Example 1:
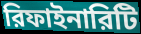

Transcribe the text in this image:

রিফাইনারিটি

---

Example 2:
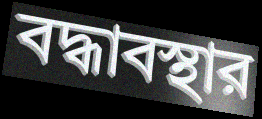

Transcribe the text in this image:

বদ্ধাবস্থার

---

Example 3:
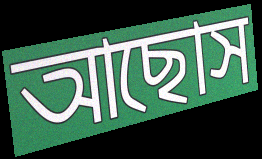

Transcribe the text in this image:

আছোস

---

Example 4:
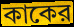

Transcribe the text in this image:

কাকের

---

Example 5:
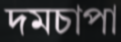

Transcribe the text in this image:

দমচাপা